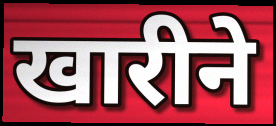
खारीने